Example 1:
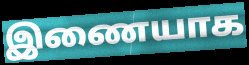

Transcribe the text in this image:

இணையாக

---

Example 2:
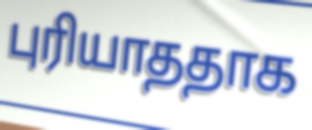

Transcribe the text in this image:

புரியாததாக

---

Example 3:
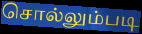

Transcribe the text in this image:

சொல்லும்படி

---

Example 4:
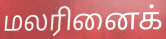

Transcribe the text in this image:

மலரினைக்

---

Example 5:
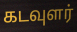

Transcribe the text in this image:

கடவுளர்